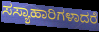
ಸಸ್ಯಾಹಾರಿಗಳಾದರೆ